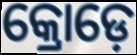
କ୍ରୋଡ଼େ